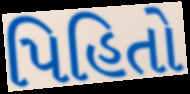
પિહિતો